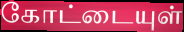
கோட்டையுள்